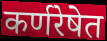
कर्णरेषेत